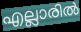
എല്ലാരിൽ